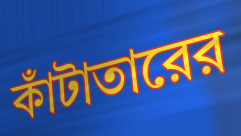
কাঁটাতারের